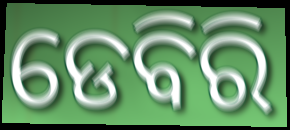
ଡେବିରି